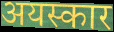
अयस्कार